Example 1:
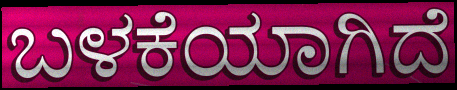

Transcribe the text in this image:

ಬಳಕೆಯಾಗಿದೆ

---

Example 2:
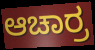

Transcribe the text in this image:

ಆಚಾರ್ರ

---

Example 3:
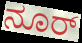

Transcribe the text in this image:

ನೂರ್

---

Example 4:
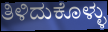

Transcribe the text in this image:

ತಿಳಿದುಕೊಳ್ಳು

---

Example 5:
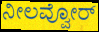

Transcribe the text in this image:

ನೀಲವ್ವೋರ್